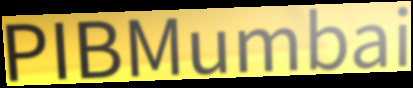
PIBMumbai